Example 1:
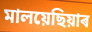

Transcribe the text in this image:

মালয়েছিয়াৰ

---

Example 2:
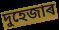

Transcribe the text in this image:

দুহেজাৰ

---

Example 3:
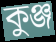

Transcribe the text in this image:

কুঞ্জ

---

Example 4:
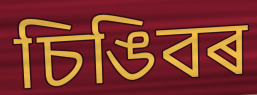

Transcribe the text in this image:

চিঙিবৰ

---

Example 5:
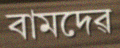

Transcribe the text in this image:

বামদেৱ